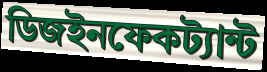
ডিজইনফেকট্যান্ট